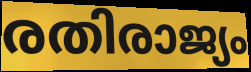
രതിരാജ്യം